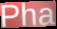
Pha